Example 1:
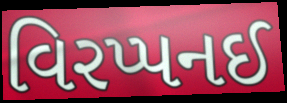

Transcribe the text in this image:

વિરપ્પનઈ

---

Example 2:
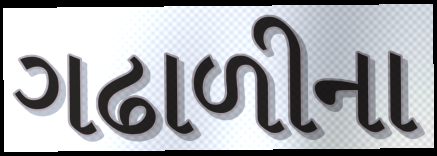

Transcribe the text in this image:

ગઢાળીના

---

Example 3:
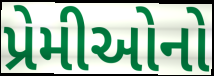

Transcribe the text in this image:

પ્રેમીઓનો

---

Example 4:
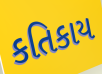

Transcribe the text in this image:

કતિકાય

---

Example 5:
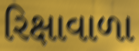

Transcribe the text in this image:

રિક્ષાવાળા